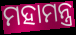
ମହାମନ୍ତ୍ର